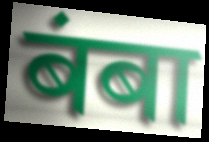
बंबा